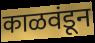
काळवंडून